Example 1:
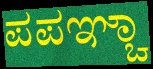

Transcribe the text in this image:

ಪಪಞ್ಚಾ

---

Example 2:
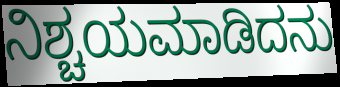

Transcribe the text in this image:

ನಿಶ್ಚಯಮಾಡಿದನು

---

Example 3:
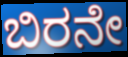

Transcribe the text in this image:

ಬಿರನೇ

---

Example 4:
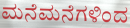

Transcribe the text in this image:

ಮನೆಮನೆಗಳಿಂದ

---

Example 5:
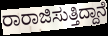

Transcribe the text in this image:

ರಾರಾಜಿಸುತ್ತಿದ್ದಾನೆ